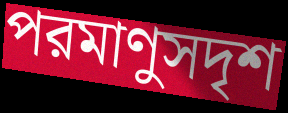
পরমাণুসদৃশ